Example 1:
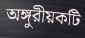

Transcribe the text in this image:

অঙ্গুরীয়কটি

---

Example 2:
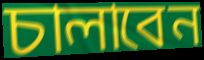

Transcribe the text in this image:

চালাবেন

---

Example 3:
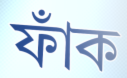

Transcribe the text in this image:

ফাঁক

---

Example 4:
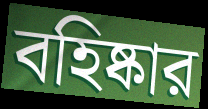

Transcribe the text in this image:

বহিষ্কার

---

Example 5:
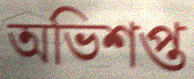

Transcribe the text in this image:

অভিশপ্ত